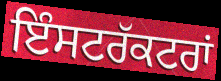
ਇੰਸਟਰੱਕਟਰਾਂ